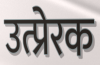
उत्प्रेरक